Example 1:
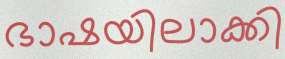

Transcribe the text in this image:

ഭാഷയിലാക്കി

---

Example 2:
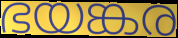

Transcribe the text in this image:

ഭയങ്കര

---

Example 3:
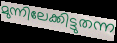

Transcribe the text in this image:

മുന്നിലേക്കിട്ടുതന്ന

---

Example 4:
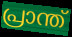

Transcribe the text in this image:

പ്രാന്ത്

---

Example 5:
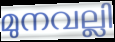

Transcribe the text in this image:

മുനവല്ലി